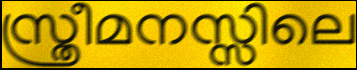
സ്ത്രീമനസ്സിലെ